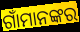
ଗାଁମାନଙ୍କର